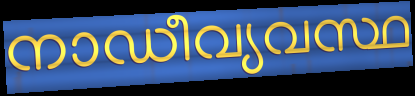
നാഡീവ്യവസ്ഥ